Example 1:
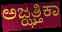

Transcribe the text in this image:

ಅಜ್ಝತ್ತಿಕಾ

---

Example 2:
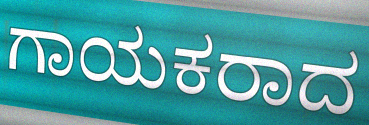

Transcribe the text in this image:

ಗಾಯಕರಾದ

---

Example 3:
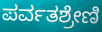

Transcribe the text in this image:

ಪರ್ವತಶ್ರೇಣಿ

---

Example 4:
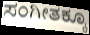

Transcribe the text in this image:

ಸಂಗೀತಕ್ಕೂ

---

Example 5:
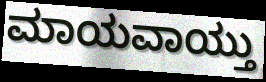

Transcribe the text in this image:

ಮಾಯವಾಯ್ತು